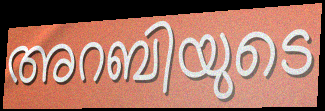
അറബിയുടെ